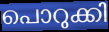
പൊറുക്കി